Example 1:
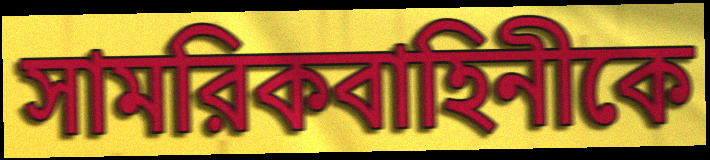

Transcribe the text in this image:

সামরিকবাহিনীকে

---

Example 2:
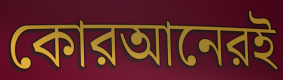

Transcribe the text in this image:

কোরআনেরই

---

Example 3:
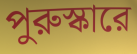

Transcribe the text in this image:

পুরুস্কারে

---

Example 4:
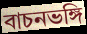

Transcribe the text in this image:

বাচনভঙ্গি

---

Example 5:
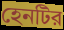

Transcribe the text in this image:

হেনটির